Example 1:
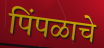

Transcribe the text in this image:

पिंपळाचे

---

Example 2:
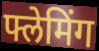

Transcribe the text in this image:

फ्लेमिंग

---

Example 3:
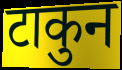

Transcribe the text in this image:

टाकुन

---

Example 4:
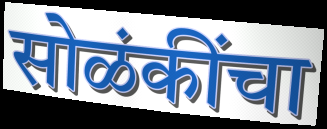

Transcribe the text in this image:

सोळंकींचा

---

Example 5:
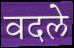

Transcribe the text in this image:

वदले